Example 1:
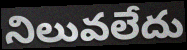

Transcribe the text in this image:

నిలువలేదు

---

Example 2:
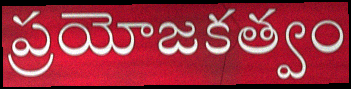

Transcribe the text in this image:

ప్రయోజకత్వం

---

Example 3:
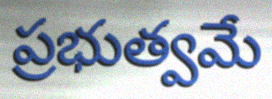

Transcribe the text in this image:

ప్రభుత్వమే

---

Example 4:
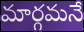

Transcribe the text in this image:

మార్గమనే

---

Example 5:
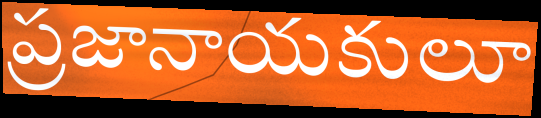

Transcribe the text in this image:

ప్రజానాయకులూ